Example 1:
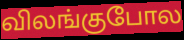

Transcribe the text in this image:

விலங்குபோல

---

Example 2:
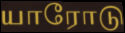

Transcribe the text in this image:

யாரோடு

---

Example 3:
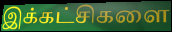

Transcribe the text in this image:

இக்கட்சிகளை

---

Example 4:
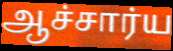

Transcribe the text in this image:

ஆச்சார்ய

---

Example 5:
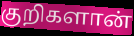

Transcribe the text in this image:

குறிகளான்